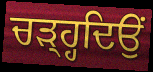
ਚੜ੍ਹ੍ਹਦਿਉਂ